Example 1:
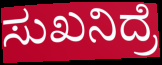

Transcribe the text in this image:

ಸುಖನಿದ್ರೆ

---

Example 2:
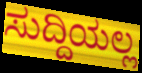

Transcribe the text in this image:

ಸುದ್ದಿಯಲ್ಲ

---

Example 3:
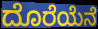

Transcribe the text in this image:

ದೊರೆಯೆನೆ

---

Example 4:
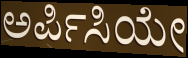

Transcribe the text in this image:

ಅರ್ಪಿಸಿಯೇ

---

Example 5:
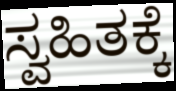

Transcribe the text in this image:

ಸ್ವಹಿತಕ್ಕೆ